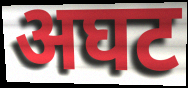
अघट